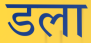
डला